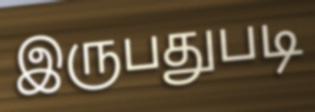
இருபதுபடி